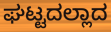
ಘಟ್ಟದಲ್ಲಾದ